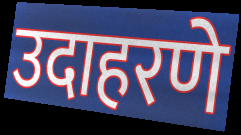
उदाहरणे